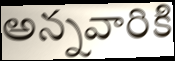
అన్నవారికి